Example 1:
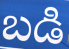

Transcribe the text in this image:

బడి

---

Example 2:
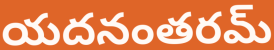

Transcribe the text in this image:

యదనంతరమ్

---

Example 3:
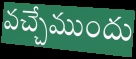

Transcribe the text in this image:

వచ్చేముందు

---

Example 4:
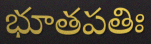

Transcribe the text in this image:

భూతపతిః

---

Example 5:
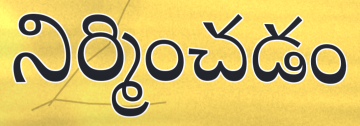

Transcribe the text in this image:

నిర్మించడం